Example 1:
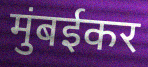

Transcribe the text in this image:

मुंबईकर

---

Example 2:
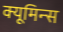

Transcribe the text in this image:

क्यूमिन्स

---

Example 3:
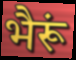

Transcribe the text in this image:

भैरूं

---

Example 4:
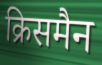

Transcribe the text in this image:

क्रिसमैन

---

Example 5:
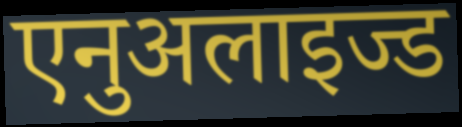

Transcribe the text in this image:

एनुअलाइज्ड